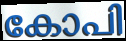
കോപി